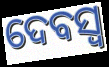
ଦେବସ୍ୱ